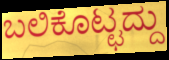
ಬಲಿಕೊಟ್ಟದ್ದು